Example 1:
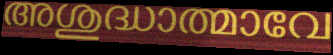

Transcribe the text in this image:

അശുദ്ധാത്മാവേ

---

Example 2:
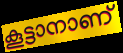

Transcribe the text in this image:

കൂട്ടാനാണ്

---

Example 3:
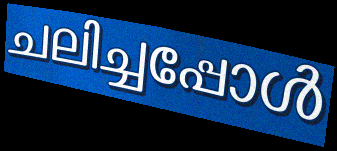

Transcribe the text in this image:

ചലിച്ചപ്പോൾ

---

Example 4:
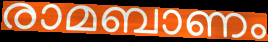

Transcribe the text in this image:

രാമബാണം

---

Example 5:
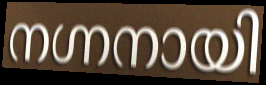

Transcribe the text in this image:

നഗ്നനായി